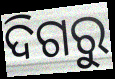
ଦିଗରୁ